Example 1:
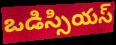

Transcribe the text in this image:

ఒడిస్సియస్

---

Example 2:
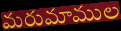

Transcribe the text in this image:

మరుమాముల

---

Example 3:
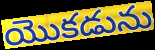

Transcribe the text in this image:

యొకడును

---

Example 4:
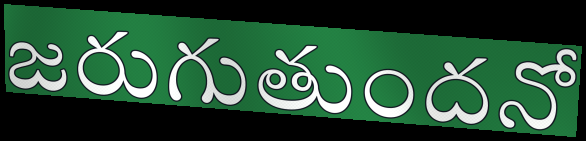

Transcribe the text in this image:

జరుగుతుందనో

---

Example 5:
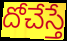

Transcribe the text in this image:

దోచేస్తే